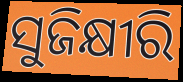
ସୁଜିକ୍ଷୀରି